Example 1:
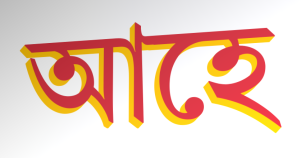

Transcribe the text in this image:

আহে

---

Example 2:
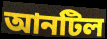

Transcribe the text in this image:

আনটিল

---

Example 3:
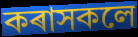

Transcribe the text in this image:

কৰাসকলে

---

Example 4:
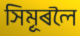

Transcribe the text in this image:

সিমূৰলৈ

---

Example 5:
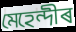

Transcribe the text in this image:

মেহেন্দীৰ